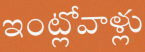
ఇంట్లోవాళ్లు